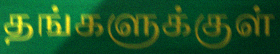
தங்களுக்குள்